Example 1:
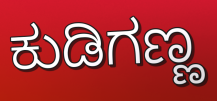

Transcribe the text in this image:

ಕುಡಿಗಣ್ಣ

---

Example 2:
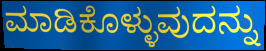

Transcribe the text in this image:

ಮಾಡಿಕೊಳ್ಳುವುದನ್ನು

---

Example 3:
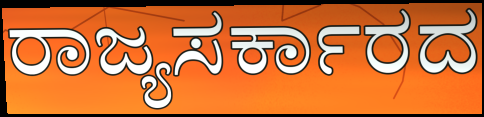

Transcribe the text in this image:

ರಾಜ್ಯಸರ್ಕಾರದ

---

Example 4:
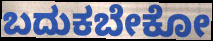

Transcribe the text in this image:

ಬದುಕಬೇಕೋ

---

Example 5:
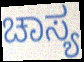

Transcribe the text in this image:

ಚಾಸ್ಯ